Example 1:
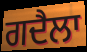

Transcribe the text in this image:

ਗਦੈਲਾ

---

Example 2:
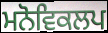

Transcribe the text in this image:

ਮਨੋਵਿਕਲਪ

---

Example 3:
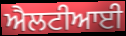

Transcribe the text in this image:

ਐਲਟੀਆਈ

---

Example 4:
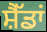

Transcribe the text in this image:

ਸ਼ੈੱਡਾਂ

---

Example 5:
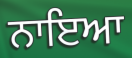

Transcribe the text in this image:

ਨਾਇਆ